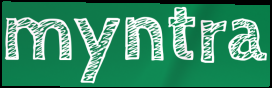
myntra